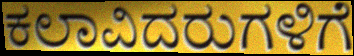
ಕಲಾವಿದರುಗಳಿಗೆ